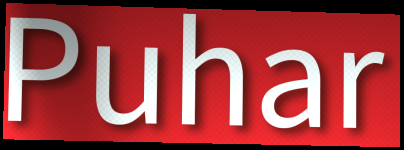
Puhar